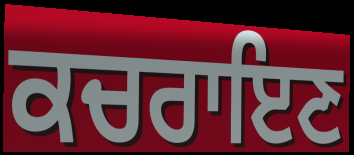
ਕਚਰਾਇਣ